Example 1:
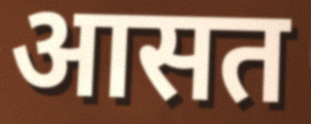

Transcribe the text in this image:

आसत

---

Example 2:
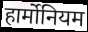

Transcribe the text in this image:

हार्मोनियम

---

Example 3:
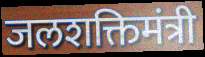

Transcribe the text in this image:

जलशक्तिमंत्री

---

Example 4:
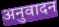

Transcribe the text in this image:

अनुवादन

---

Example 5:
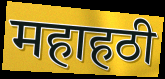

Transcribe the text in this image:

महाहठी